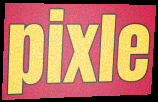
pixle